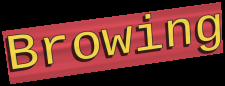
Browing